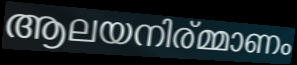
ആലയനിര്മ്മാണം